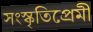
সংস্কৃতিপ্রেমী